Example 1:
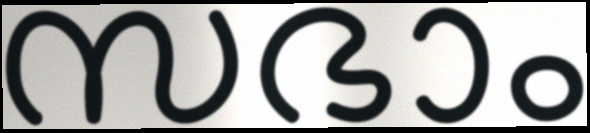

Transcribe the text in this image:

സഭാം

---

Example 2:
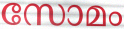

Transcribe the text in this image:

സോമം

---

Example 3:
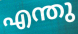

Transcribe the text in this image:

എന്തു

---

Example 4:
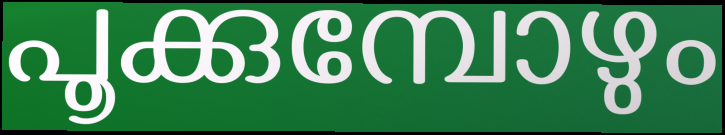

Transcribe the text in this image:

പൂക്കുമ്പോഴും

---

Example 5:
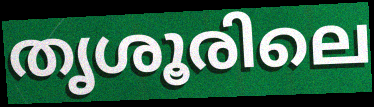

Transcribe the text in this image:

തൃശൂരിലെ